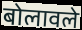
बोलावले